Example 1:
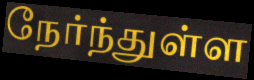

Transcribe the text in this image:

நேர்ந்துள்ள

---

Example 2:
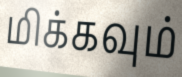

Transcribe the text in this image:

மிக்கவும்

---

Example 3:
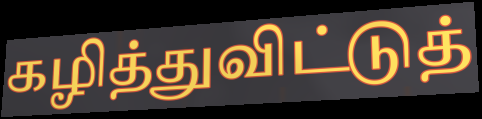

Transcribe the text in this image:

கழித்துவிட்டுத்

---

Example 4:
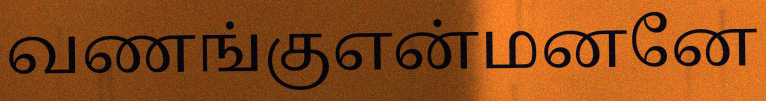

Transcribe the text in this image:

வணங்குஎன்மனனே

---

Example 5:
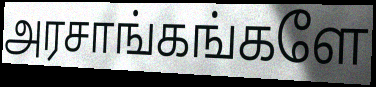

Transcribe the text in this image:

அரசாங்கங்களே